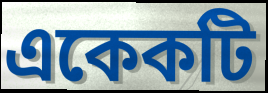
একেকটি